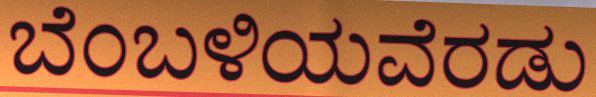
ಬೆಂಬಳಿಯವೆರಡು